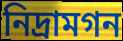
নিদ্রামগন